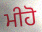
ਮੀਹੋ